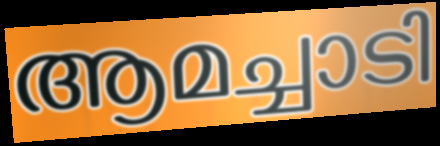
ആമച്ചാടി